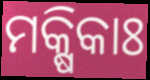
ମକ୍ଷିକାଃ